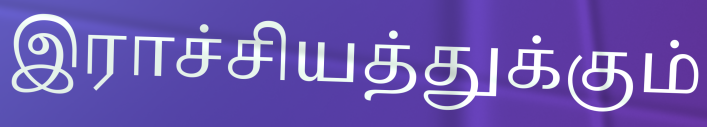
இராச்சியத்துக்கும்